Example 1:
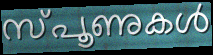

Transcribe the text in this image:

സ്പൂണുകൾ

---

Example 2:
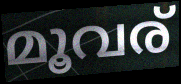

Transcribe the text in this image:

മൂവര്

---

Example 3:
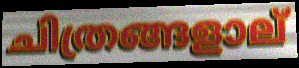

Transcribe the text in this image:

ചിത്രങ്ങളാല്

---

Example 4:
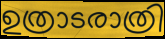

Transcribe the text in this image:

ഉത്രാടരാത്രി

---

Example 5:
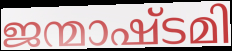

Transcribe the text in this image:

ജന്മാഷ്ടമി